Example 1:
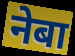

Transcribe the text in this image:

नेबा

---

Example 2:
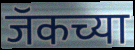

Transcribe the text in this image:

जॅकच्या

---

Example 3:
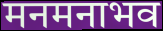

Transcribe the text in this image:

मनमनाभव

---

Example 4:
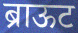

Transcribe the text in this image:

ब्राऊट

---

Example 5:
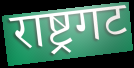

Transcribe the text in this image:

राष्ट्रगट